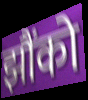
झौंको